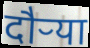
दौऱ्या